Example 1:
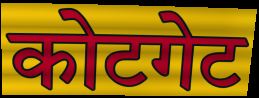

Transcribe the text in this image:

कोटगेट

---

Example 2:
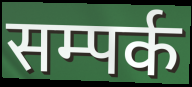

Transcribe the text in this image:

सम्पर्क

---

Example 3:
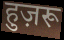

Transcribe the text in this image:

हुज़रू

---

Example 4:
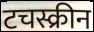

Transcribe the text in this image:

टचस्क्रीन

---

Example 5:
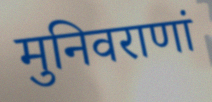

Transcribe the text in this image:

मुनिवराणां